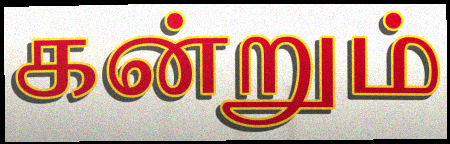
கன்றும்